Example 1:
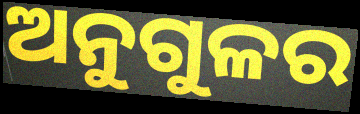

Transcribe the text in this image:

ଅନୁଗୁଳର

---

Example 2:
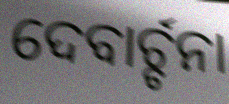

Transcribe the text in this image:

ଦେବାର୍ଚ୍ଚନା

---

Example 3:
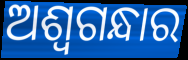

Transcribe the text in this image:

ଅଶ୍ୱଗନ୍ଧାର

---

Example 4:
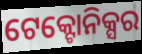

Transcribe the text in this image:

ଟେକ୍ଟୋନିକ୍ସର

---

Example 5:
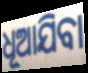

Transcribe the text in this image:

ଧୂଆଯିବା